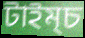
টাইম্‌চ